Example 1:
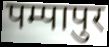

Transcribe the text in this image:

पम्पापुर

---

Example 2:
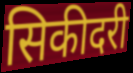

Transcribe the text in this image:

सिकीदरी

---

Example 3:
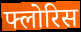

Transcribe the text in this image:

फ्लोरिस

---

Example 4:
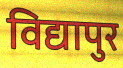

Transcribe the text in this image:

विद्यापुर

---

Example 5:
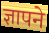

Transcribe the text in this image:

ज्ञापने